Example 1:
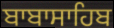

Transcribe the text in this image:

ਬਾਬਾਸਾਹਿਬ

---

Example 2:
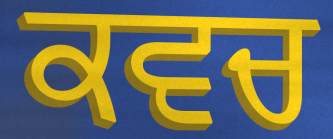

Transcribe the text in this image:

ਕਵਚ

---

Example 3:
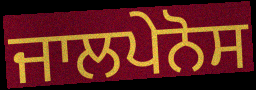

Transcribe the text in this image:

ਜਾਲਪੇਨੋਸ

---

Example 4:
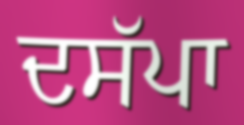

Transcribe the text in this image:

ਦਸੱਪਾ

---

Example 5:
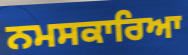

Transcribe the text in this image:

ਨਮਸਕਾਰਿਆ